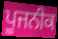
ਪੂਜਨੀਕ